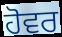
ਹੋਵਰ